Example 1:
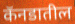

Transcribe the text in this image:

कॅनडातील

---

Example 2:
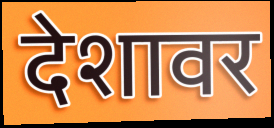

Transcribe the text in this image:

देशावर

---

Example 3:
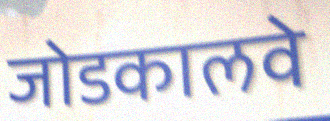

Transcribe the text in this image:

जोडकालवे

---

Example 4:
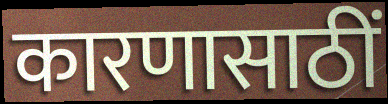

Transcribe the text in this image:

कारणासाठीं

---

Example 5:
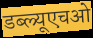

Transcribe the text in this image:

डब्ल्यूएचओ